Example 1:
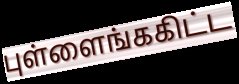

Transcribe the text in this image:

புள்ளைங்ககிட்ட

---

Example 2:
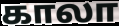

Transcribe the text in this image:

காலா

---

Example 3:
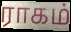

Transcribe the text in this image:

ராகம்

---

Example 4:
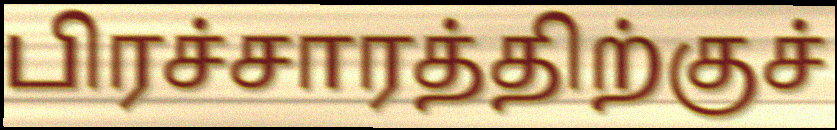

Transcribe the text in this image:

பிரச்சாரத்திற்குச்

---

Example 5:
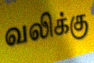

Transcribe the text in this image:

வலிக்கு